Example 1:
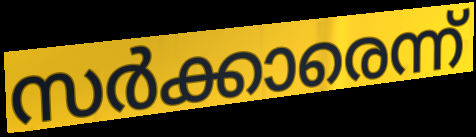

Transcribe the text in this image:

സർക്കാരെന്ന്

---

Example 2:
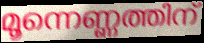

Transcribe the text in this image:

മൂന്നെണ്ണത്തിന്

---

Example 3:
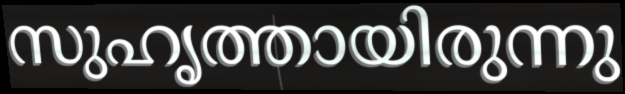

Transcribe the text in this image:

സുഹൃത്തായിരുന്നു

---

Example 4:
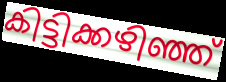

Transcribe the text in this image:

കിട്ടിക്കഴിഞ്ഞ്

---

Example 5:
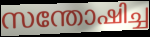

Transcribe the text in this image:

സന്തോഷിച്ച